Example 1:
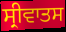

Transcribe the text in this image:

ਸ੍ਰੀਵਾਤਸ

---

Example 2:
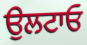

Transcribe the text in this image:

ਉਲਟਾਓ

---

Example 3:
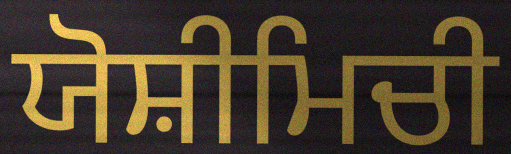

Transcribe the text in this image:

ਯੋਸ਼ੀਮਿਚੀ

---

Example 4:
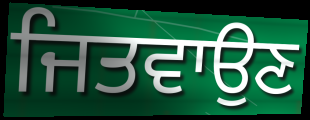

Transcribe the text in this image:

ਜਿਤਵਾਉਣ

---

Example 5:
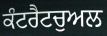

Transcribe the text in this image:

ਕੰਟਰੈਟਚੁਅਲ